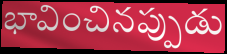
భావించినప్పుడు